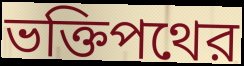
ভক্তিপথের